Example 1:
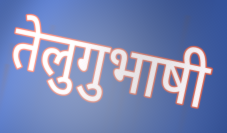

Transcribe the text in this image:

तेलुगुभाषी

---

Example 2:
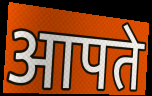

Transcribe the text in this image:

आपते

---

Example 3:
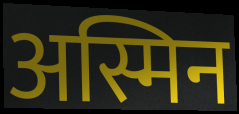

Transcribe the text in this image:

अस्मिन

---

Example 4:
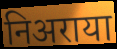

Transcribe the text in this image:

निअराया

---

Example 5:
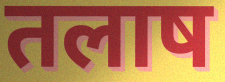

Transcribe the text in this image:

तलाष